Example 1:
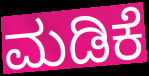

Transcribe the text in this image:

ಮಡಿಕೆ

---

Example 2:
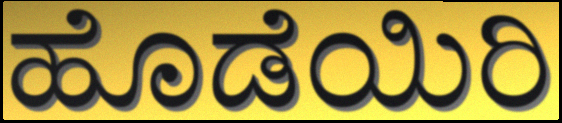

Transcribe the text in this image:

ಹೊಡೆಯಿರಿ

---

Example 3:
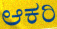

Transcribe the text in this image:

ಆಕರಿ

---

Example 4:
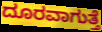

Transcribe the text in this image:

ದೂರವಾಗುತ್ತೆ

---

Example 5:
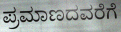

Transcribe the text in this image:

ಪ್ರಮಾಣದವರೆಗೆ